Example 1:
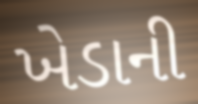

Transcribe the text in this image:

ખેડાની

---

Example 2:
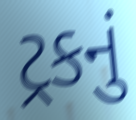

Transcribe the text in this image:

ટ્રકનું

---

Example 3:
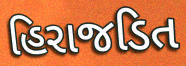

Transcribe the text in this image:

હિરાજડિત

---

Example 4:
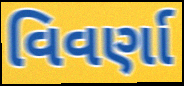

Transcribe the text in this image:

વિવર્ણા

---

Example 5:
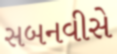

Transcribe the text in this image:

સબનવીસે